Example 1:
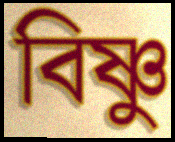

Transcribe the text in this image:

বিষ্ণু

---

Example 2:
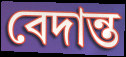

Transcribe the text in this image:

বেদান্ত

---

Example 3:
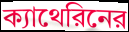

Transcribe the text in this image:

ক্যাথেরিনের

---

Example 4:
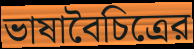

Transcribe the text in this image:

ভাষাবৈচিত্রের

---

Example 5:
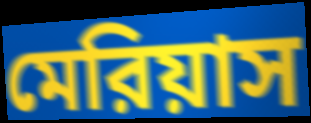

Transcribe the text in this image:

মেরিয়াস